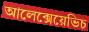
আলেক্সেয়েভিচ